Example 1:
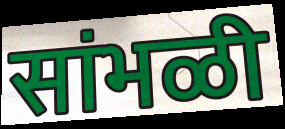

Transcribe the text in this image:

सांभळी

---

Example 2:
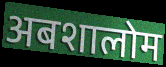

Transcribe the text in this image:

अबशालोम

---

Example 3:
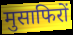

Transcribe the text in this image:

मुसाफिरों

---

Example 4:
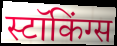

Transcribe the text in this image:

स्टॉकिंग्स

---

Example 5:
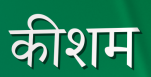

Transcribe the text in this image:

कीशम